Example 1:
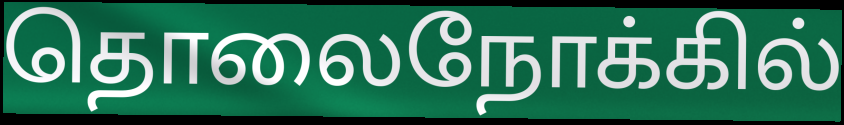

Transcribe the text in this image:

தொலைநோக்கில்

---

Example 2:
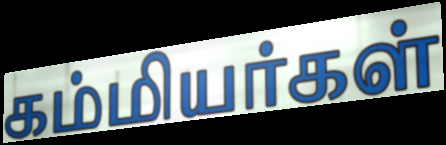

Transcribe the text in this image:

கம்மியர்கள்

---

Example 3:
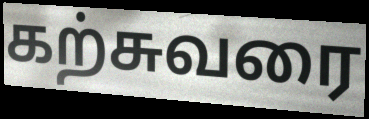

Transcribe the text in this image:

கற்சுவரை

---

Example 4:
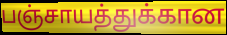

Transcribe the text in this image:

பஞ்சாயத்துக்கான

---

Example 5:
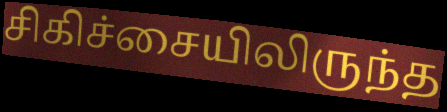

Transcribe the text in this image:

சிகிச்சையிலிருந்த